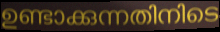
ഉണ്ടാക്കുന്നതിനിടെ